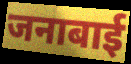
जनाबाई